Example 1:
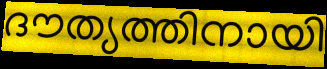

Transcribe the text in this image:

ദൗത്യത്തിനായി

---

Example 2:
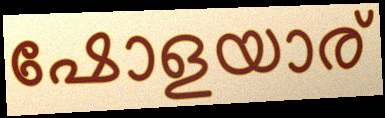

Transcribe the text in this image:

ഷോളയാര്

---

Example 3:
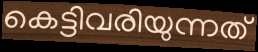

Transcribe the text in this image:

കെട്ടിവരിയുന്നത്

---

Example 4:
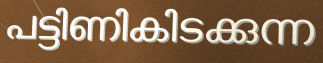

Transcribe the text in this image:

പട്ടിണികിടക്കുന്ന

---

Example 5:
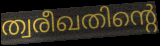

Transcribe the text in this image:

ത്വരീഖതിന്റെ